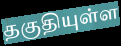
தகுதியுள்ள